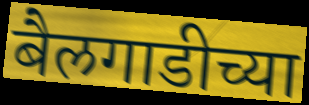
बैलगाडीच्या